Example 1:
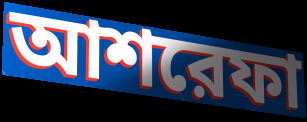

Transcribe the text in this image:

আশরেফা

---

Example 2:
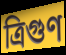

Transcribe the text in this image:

ত্রিগুণ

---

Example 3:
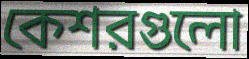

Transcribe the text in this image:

কেশরগুলো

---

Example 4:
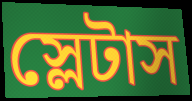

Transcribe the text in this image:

স্লেটাস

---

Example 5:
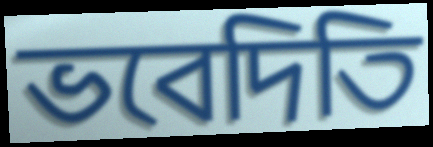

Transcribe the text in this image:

ভবেদিতি